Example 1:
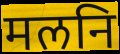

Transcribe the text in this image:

मलनि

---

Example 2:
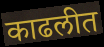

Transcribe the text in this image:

काढलीत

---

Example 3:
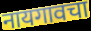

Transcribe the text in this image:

नायगावचा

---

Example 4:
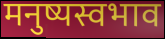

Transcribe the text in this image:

मनुष्यस्वभाव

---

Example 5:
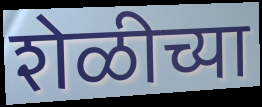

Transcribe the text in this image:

शेळीच्या